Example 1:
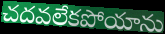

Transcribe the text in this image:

చదవలేకపోయాను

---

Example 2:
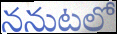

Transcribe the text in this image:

ననుటలో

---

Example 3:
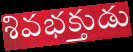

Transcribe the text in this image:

శివభక్తుడు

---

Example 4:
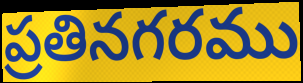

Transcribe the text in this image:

ప్రతినగరము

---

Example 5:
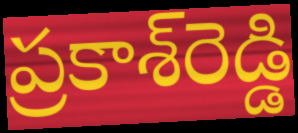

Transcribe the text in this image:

ప్రకాశ్‌రెడ్డి